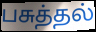
பசுத்தல்